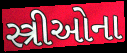
સ્ત્રીઓના